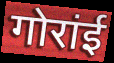
गोरांई